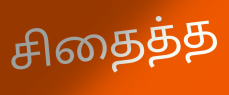
சிதைத்த